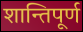
शान्तिपूर्ण